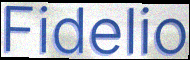
Fidelio